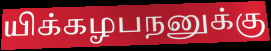
யிக்கழபநனுக்கு